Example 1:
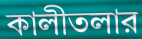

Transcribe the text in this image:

কালীতলার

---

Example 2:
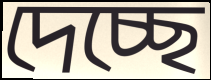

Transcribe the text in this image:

দেচ্ছে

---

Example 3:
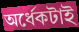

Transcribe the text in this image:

অর্ধেকটাই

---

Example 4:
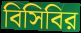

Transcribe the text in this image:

বিসিবির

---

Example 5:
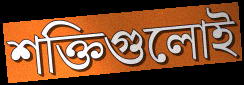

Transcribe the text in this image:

শক্তিগুলোই